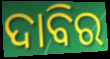
ଦାବିର